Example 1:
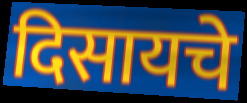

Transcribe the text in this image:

दिसायचे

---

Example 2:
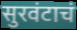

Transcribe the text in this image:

सुरवंटाचं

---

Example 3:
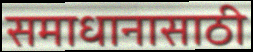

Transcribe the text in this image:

समाधानासाठी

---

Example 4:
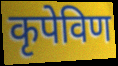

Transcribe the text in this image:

कृपेविण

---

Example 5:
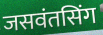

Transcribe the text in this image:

जसवंतसिंग